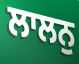
ਲਾਲਨੁ